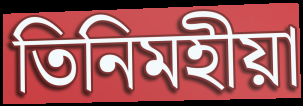
তিনিমহীয়া